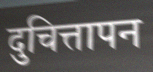
दुचित्तापन